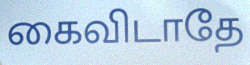
கைவிடாதே